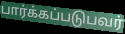
பார்க்கப்படுபவர்